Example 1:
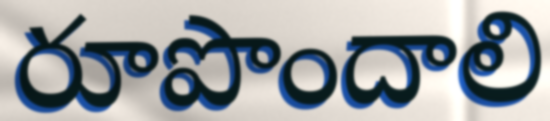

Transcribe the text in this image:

రూపొందాలి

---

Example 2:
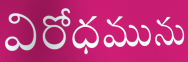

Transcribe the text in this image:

విరోధమును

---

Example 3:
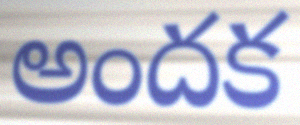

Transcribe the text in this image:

అందక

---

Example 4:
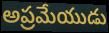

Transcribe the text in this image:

అప్రమేయుడు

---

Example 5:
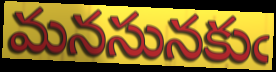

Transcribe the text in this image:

మనసునకుఁ